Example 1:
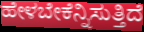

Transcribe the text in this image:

ಹೇಳಬೇಕೆನ್ನಿಸುತ್ತಿದೆ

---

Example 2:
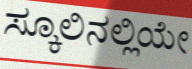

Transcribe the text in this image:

ಸ್ಕೂಲಿನಲ್ಲಿಯೇ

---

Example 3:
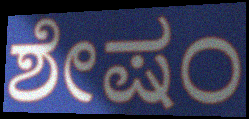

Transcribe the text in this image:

ಶೇಷಂ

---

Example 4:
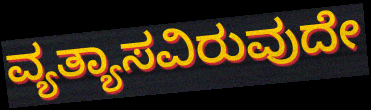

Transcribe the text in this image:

ವ್ಯತ್ಯಾಸವಿರುವುದೇ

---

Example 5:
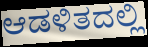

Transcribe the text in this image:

ಆಡಳಿತದಲ್ಲಿ